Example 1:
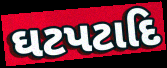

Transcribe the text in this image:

ઘટપટાદિ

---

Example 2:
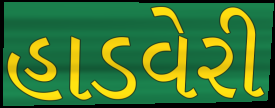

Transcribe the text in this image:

હાડવેરી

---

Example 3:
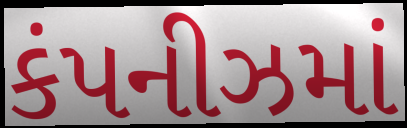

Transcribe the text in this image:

કંપનીઝમાં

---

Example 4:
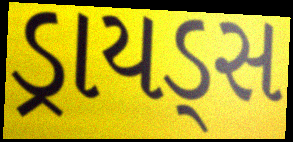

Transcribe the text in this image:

ડ્રાયડ્સ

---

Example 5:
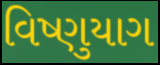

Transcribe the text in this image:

વિષ્ણુયાગ